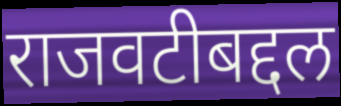
राजवटीबद्दल